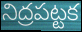
నిద్రపట్టక